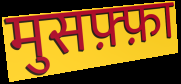
मुसफ़्फ़ा